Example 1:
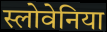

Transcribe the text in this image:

स्लोवेनिया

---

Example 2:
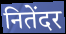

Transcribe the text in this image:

नितेंदर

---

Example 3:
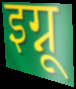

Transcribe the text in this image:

इग्नू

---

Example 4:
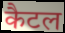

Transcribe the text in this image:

कैटल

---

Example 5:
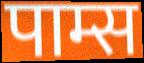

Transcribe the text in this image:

पाम्स